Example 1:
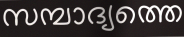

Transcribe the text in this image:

സമ്പാദ്യത്തെ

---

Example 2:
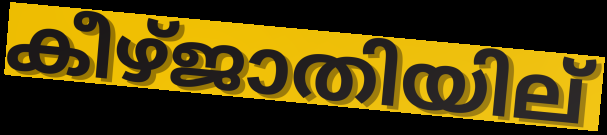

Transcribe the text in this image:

കീഴ്ജാതിയില്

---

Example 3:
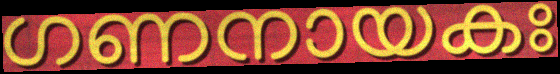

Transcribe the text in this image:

ഗണനായകഃ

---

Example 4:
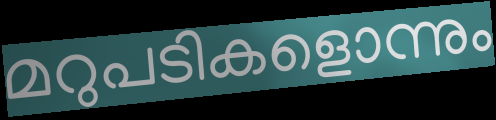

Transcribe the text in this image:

മറുപടികളൊന്നും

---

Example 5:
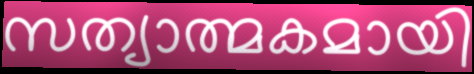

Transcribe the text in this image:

സത്യാത്മകമായി